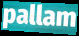
pallam